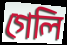
গেলি